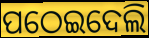
ପଠେଇଦେଲି